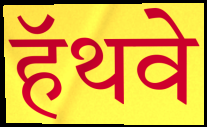
हॅथवे